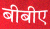
बीबीए